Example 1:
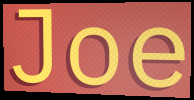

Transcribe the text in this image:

Joe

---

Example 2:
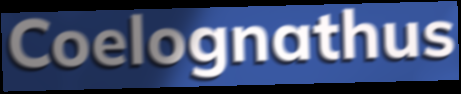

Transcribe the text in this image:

Coelognathus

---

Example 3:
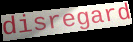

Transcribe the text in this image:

disregard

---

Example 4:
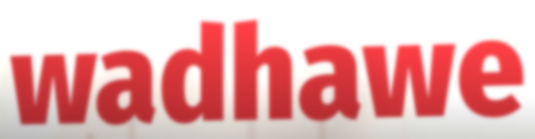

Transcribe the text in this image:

wadhawe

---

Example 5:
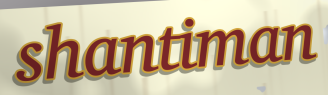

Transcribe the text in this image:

shantiman